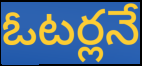
ఓటర్లనే